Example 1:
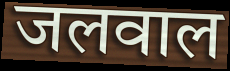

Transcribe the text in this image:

जलवाल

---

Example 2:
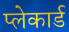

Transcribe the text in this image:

प्‍लेकार्ड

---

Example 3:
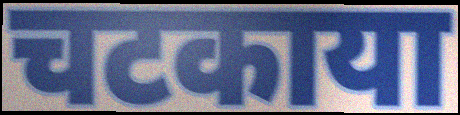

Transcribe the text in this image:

चटकाया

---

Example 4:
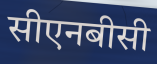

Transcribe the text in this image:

सीएनबीसी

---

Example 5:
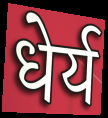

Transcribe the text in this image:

धेर्य